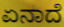
ಏನಾದೆ